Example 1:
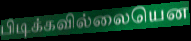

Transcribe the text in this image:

பிடிக்கவில்லையென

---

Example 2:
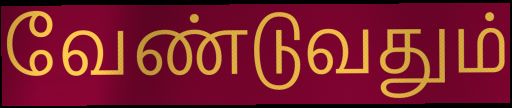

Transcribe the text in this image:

வேண்டுவதும்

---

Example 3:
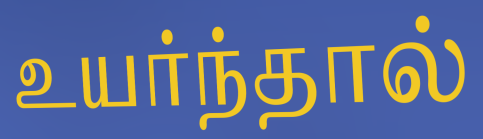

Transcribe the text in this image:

உயர்ந்தால்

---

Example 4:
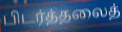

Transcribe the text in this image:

பிடர்த்தலைத்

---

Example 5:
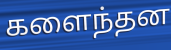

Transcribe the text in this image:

களைந்தன